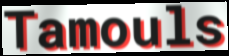
Tamouls